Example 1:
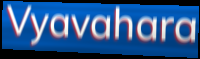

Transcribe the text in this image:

Vyavahara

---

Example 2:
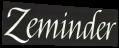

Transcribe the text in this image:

Zeminder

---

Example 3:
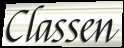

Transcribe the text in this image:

Classen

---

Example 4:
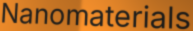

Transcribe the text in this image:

Nanomaterials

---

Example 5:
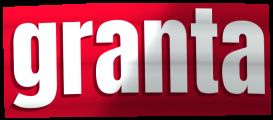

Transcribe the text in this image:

granta